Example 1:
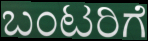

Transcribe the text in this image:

ಬಂಟರಿಗೆ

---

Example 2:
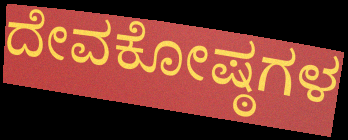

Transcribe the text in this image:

ದೇವಕೋಷ್ಠಗಳ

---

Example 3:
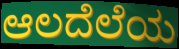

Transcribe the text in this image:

ಆಲದೆಲೆಯ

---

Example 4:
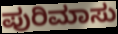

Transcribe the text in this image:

ಪುರಿಮಾಸು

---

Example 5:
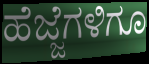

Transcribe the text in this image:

ಹೆಜ್ಜೆಗಳಿಗೂ